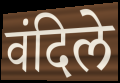
वंदिले